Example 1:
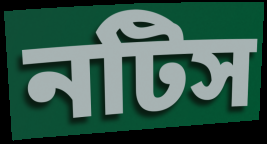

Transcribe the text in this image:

নটিস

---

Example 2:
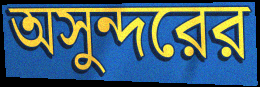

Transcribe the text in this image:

অসুন্দরের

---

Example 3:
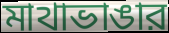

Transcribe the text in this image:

মাথাভাঙার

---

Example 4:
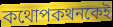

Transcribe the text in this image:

কথোপকথনকেই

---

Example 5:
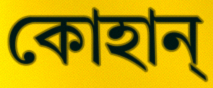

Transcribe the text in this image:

কোহান্